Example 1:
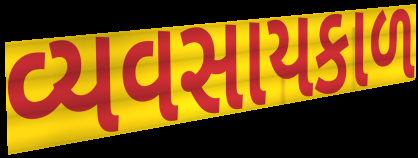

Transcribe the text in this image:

વ્યવસાયકાળ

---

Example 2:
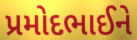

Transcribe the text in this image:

પ્રમોદભાઈને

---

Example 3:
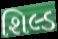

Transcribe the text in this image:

શિલ્ડ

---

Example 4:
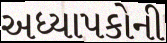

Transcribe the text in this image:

અધ્યાપકોની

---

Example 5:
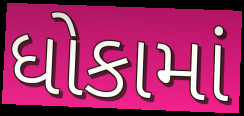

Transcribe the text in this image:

ધોકામાં